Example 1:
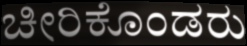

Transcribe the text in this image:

ಚೀರಿಕೊಂಡರು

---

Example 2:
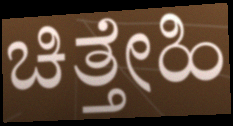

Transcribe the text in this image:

ಚಿತ್ತೇಹಿ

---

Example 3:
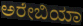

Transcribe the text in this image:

ಅರೇಬಿಯಾ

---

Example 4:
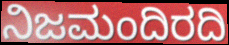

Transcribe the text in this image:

ನಿಜಮಂದಿರದಿ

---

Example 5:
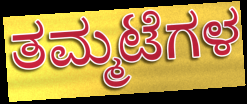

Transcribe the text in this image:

ತಮ್ಮಟೆಗಳ